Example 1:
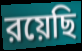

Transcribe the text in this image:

রয়েছি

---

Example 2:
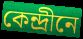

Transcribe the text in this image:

কেন্দ্রীনে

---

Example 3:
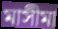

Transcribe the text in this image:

মাসীমা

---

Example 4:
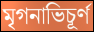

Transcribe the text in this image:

মৃগনাভিচূর্ণ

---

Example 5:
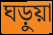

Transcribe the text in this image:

ঘড়ুয়া